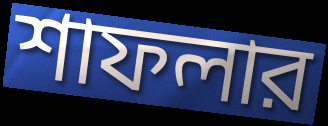
শাফলার